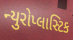
ન્યુરોપ્લાસ્ટિક